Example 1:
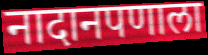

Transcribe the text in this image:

नादानपणाला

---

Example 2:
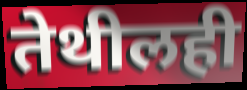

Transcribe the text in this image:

तेथीलही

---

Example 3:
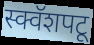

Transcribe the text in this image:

स्क्वॅशपटू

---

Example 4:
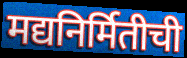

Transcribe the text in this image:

मद्यनिर्मितीची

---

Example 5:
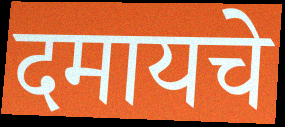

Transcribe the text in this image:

दमायचे